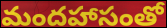
మందహాసంతో